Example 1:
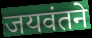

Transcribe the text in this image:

जयवंतने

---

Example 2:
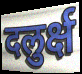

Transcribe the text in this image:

दलुर्क्ष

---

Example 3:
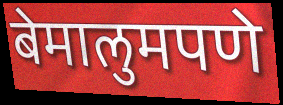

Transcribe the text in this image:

बेमालुमपणे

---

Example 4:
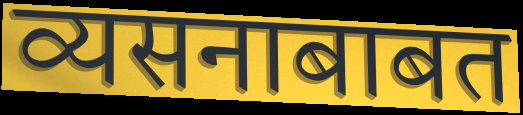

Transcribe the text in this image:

व्यसनाबाबत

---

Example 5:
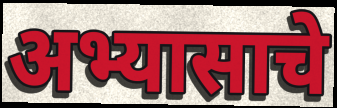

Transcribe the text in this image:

अभ्यासाचे